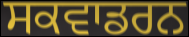
ਸਕਵਾਡਰਨ